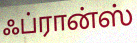
ஃப்ரான்ஸ்